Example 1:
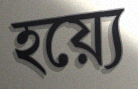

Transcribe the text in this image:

হয়্যে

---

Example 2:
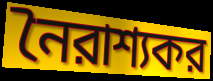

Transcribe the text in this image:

নৈরাশ্যকর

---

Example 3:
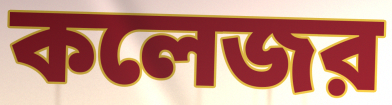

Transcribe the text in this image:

কলেজর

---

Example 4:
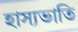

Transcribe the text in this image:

হাস্যভাতি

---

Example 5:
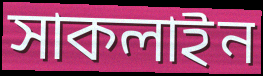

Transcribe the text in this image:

সাকলাইন